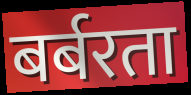
बर्बरता